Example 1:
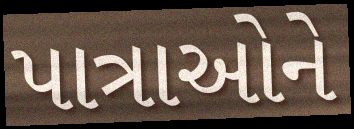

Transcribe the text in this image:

પાત્રાઓને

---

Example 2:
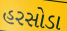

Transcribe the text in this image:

હરસોડા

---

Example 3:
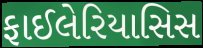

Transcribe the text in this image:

ફાઈલેરિયાસિસ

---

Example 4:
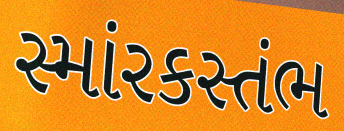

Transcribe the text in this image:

સ્માંરકસ્તંભ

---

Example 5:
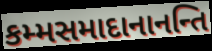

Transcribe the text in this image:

કમ્મસમાદાનાનન્તિ